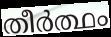
തീർത്ഥം